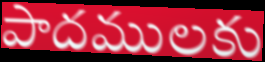
పాదములకు